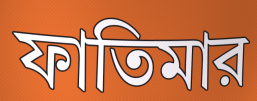
ফাতিমার